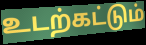
உடற்கட்டும்